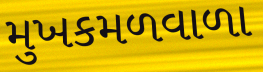
મુખકમળવાળા